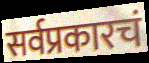
सर्वप्रकारचं